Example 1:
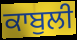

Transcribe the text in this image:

ਕਾਬੁਲੀ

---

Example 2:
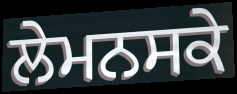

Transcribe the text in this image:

ਲੇਮਨਸਕੇ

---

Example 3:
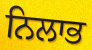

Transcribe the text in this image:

ਨਿਲਾਭ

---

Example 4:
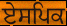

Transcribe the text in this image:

ਏਸਪਿਕ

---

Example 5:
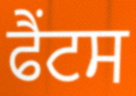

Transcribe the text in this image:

ਫੈਂਟਸ